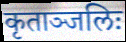
कृताञ्जलिः